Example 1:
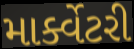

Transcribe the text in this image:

માર્ક્વેટરી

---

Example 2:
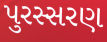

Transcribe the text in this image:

પુરસ્સરણ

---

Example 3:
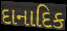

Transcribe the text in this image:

દાનાદિક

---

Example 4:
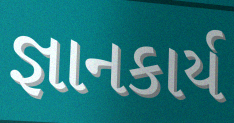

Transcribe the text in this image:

જ્ઞાનકાર્ય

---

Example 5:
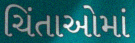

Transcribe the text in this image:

ચિંતાઓમાં